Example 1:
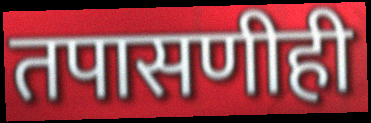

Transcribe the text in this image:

तपासणीही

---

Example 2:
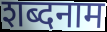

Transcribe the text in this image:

शब्दनाम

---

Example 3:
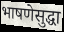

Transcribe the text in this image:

भाषणेसुद्धा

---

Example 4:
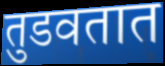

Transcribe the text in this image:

तुडवतात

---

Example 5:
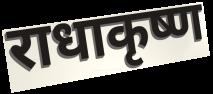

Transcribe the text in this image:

राधाकृष्ण